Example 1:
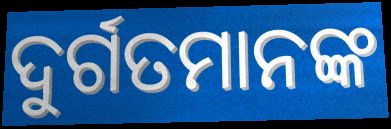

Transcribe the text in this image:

ଦୁର୍ଗତମାନଙ୍କ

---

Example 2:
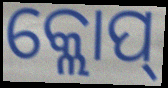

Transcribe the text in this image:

କ୍ଲୋପ୍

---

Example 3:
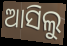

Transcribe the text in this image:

ଆସିଲୁ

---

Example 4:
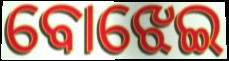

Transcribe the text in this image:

ବୋଝେଇ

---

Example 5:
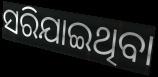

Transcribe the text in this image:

ସରିଯାଇଥିବା